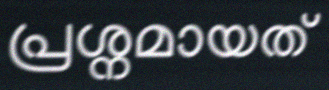
പ്രശ്നമായത്